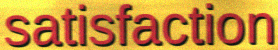
satisfaction